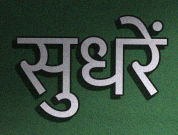
सुधरें